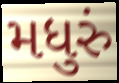
મધુરું